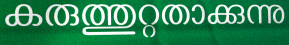
കരുത്തുറ്റതാക്കുന്നു